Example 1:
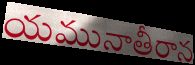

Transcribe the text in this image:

యమునాతీరాన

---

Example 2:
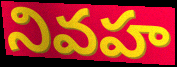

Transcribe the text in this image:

నివహ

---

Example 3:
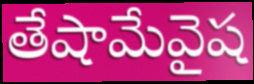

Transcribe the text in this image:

తేషామేవైష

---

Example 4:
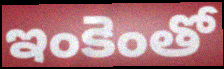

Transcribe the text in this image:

ఇంకెంతో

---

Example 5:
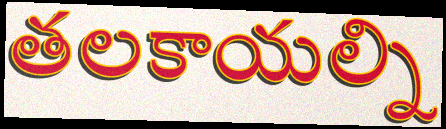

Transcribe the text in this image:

తలకాయల్ని